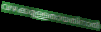
വഴക്കമുള്ളതായതിനാൽ